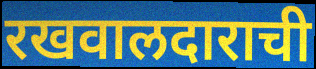
रखवालदाराची